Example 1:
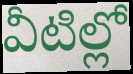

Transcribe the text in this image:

వీటిల్లో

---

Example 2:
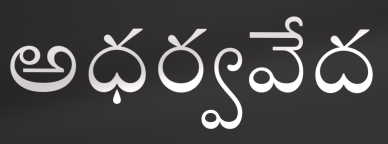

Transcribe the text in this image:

అధర్వవేద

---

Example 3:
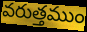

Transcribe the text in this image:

వరుత్తముం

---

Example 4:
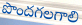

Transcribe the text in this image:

పొందగలగాలి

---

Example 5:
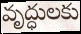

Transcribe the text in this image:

వృద్ధులకు